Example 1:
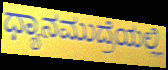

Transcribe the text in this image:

ಧ್ಯಾನಮುದ್ರೆಯಲ್ಲಿ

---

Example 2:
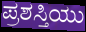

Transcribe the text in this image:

ಪ್ರಶಸ್ತಿಯು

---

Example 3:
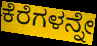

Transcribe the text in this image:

ಕೆರೆಗಳನ್ನೇ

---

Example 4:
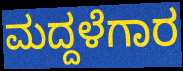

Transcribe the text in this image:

ಮದ್ದಳೆಗಾರ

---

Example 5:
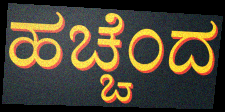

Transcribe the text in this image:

ಹಚ್ಚೆಂದ